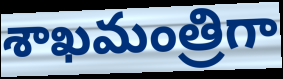
శాఖమంత్రిగా